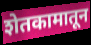
शेतकामातून